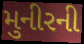
મુનીરની